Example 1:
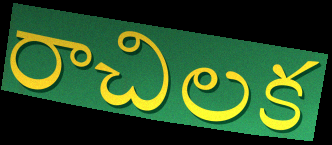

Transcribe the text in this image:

రాచిలక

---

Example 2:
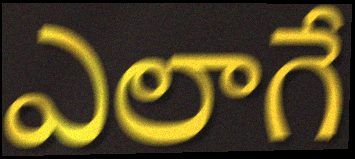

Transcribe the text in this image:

ఎలాగే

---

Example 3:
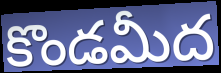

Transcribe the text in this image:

కొండమీద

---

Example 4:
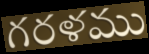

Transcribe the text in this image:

గరళము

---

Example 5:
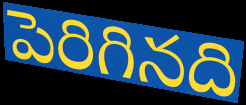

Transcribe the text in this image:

పెరిగినది